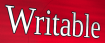
Writable